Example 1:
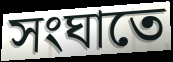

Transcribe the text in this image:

সংঘাতে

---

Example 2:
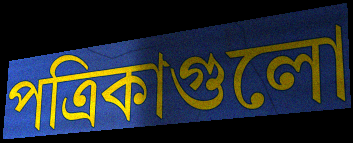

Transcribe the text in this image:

পত্রিকাগুলো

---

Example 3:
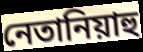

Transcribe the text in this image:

নেতানিয়াহু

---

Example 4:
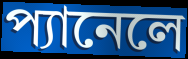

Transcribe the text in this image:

প্যানেলে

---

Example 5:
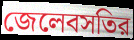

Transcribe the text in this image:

জেলেবসতির